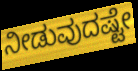
ನೀಡುವುದಷ್ಟೇ